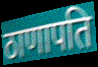
ठाणापति